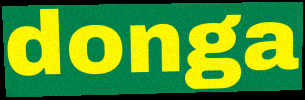
donga